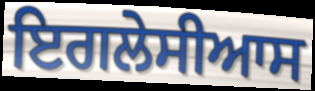
ਇਗਲੇਸੀਆਸ